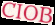
CIOB